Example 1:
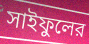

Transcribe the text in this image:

সাইফুলের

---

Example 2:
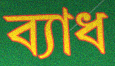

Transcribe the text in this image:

ব্যাধ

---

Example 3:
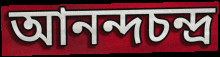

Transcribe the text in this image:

আনন্দচন্দ্র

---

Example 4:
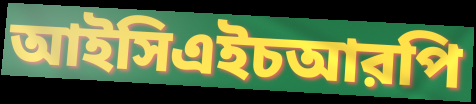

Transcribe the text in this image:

আইসিএইচআরপি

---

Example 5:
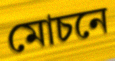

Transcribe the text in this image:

মোচনে